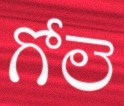
గోలె